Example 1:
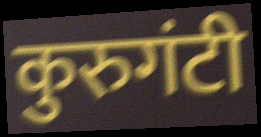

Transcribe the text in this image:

कुरुगंटी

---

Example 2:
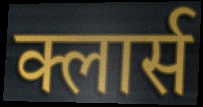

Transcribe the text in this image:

क्लार्स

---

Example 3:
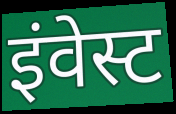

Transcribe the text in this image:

इंवेस्ट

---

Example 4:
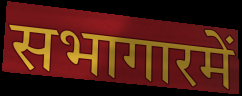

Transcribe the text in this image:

सभागारमें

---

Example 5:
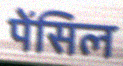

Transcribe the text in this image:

पेंसिल